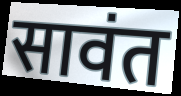
सावंत